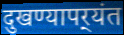
दुखण्यापर्यंत